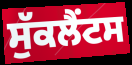
ਸੁੱਕਲੈਂਟਸ